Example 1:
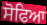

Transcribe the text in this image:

ਸੋਫਿਆ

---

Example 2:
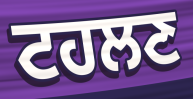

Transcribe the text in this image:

ਟਹਲਣ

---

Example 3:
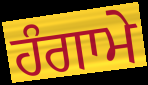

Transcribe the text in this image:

ਹੰਗਾਮੇ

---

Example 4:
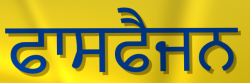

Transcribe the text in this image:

ਫਾਸਫੈਜਨ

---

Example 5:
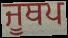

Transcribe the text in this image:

ਜੂਥਪ